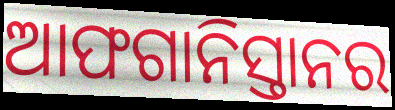
ଆଫଗାନିସ୍ତାନର